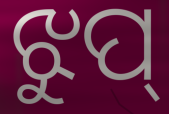
ଝୁପ୍